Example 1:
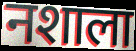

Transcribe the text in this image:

नशाला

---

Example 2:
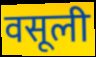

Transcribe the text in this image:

वसूली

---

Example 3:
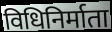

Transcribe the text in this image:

विधिनिर्माता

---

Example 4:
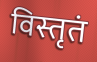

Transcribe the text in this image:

विस्तृतं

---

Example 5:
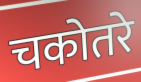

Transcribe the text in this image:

चकोतरे